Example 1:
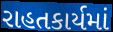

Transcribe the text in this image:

રાહતકાર્યમાં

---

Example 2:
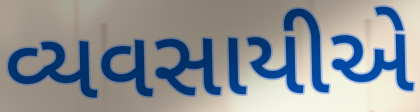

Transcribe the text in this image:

વ્યવસાયીએ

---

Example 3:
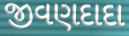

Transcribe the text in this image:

જીવણદાદા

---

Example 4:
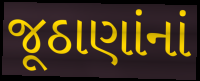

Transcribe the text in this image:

જૂઠાણાંનાં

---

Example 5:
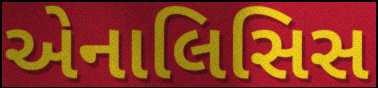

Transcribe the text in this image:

એનાલિસિસ